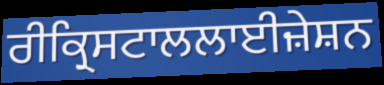
ਰੀਕ੍ਰਿਸਟਾਲਲਾਈਜ਼ੇਸ਼ਨ